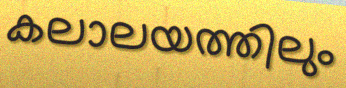
കലാലയത്തിലും